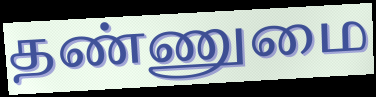
தண்ணுமை